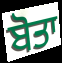
ਬੋਤਾ